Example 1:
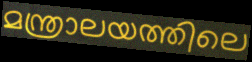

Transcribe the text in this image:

മന്ത്രാലയത്തിലെ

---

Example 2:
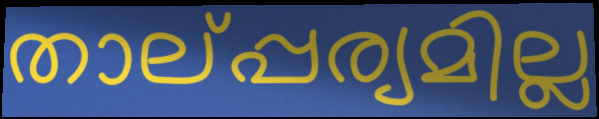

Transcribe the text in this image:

താല്പ്പര്യമില്ല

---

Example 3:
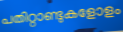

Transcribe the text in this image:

പതിറ്റാണ്ടുകളോളം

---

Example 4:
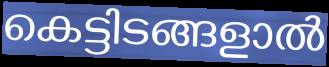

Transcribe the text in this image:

കെട്ടിടങ്ങളാൽ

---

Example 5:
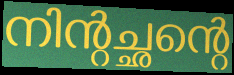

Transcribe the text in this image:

നിന്റച്ഛന്റെ